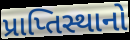
પ્રાપ્તિસ્થાનો